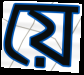
য়ে